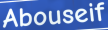
Abouseif